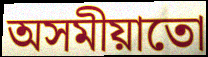
অসমীয়াতো